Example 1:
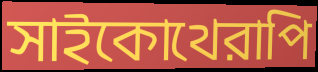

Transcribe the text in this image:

সাইকোথেরাপি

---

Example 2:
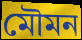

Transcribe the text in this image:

মৌমন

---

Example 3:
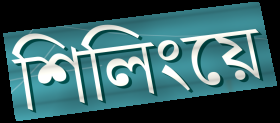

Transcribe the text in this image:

শিলিংয়ে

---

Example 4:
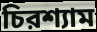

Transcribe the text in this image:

চিরশ্যাম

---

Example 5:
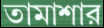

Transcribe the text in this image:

তামাশার